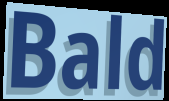
Bald